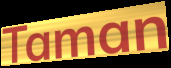
Taman